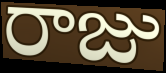
రాజు